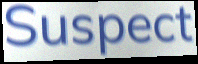
Suspect